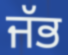
ਜੱਭ